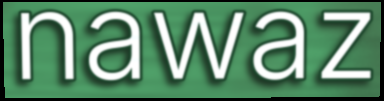
nawaz